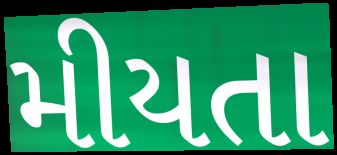
મીયતા